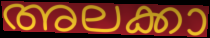
അലക്കാ